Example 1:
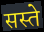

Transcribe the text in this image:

सस्ते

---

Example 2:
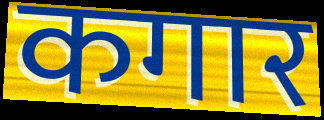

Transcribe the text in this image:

कगार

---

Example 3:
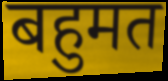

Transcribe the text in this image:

बहुमत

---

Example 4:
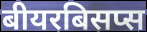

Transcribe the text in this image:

बीयरबिसप्स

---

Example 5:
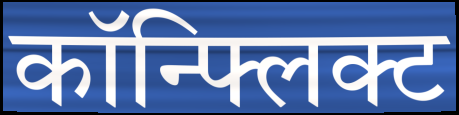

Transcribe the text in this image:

कॉन्फ्लिक्ट